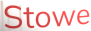
Stowe